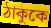
ঠাকুকে